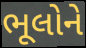
ભૂલોને